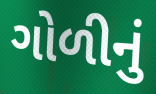
ગોળીનું